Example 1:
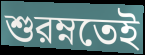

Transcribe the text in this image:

শুরম্নতেই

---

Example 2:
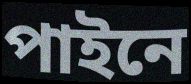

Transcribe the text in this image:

পাইনে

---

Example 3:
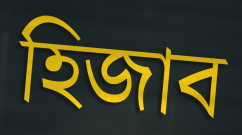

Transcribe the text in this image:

হিজাব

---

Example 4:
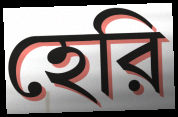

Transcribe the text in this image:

হেরি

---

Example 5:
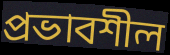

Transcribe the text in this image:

প্রভাবশীল